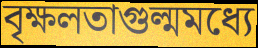
বৃক্ষলতাগুল্মমধ্যে